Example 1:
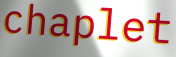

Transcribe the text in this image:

chaplet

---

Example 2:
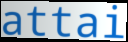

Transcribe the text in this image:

attai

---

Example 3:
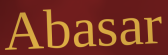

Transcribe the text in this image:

Abasar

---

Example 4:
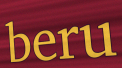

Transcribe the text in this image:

beru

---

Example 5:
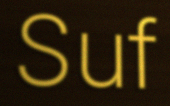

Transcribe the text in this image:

Suf